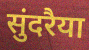
सुंदरैया